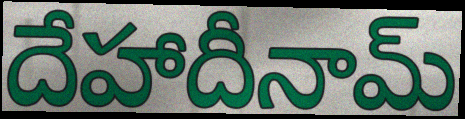
దేహాదీనామ్